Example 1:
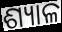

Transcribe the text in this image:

ଶ୍ୟାଳ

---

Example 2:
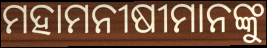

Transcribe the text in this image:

ମହାମନୀଷୀମାନଙ୍କୁ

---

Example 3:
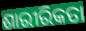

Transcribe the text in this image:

ଶାରୀରିକତା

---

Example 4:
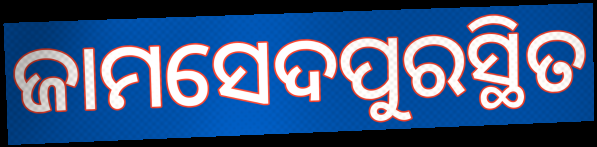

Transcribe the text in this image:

ଜାମସେଦପୁରସ୍ଥିତ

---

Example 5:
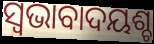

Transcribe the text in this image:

ସ୍ଵଭାବାଦୟଶ୍ଚ